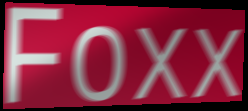
Foxx